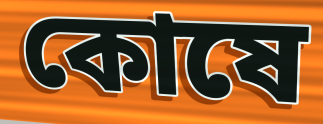
কোষে